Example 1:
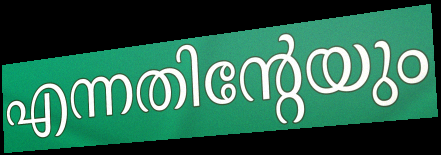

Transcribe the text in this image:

എന്നതിന്റേയും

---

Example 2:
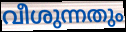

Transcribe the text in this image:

വീശുന്നതും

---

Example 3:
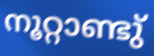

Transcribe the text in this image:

നൂറ്റാണ്ടു്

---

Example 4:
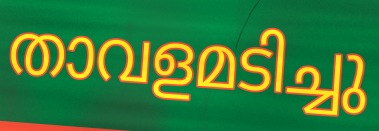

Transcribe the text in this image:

താവളമടിച്ചു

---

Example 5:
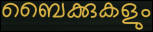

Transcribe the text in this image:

ബൈക്കുകളും